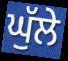
ਘੁੱਲੇ